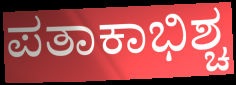
ಪತಾಕಾಭಿಶ್ಚ